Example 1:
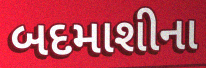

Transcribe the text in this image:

બદમાશીના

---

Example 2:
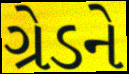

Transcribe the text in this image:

ગ્રેડને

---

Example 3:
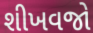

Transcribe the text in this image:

શીખવજો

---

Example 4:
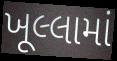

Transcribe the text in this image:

ખૂલ્લામાં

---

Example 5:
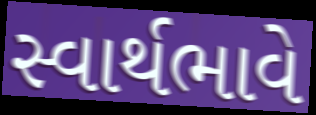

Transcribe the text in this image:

સ્વાર્થભાવે